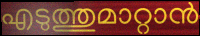
എടുത്തുമാറ്റാൻ